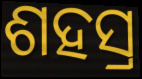
ଶହସ୍ର